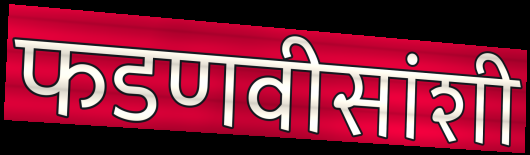
फडणवीसांशी